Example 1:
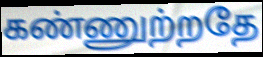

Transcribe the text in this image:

கண்ணுற்றதே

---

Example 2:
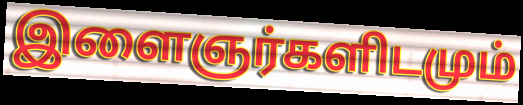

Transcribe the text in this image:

இளைஞர்களிடமும்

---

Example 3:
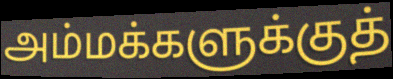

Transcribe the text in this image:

அம்மக்களுக்குத்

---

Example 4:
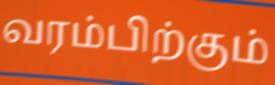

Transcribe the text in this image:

வரம்பிற்கும்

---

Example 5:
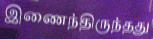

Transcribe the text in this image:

இணைந்திருந்தது